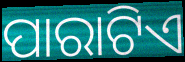
ପାରାଟିଏ